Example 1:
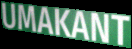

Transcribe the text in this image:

UMAKANT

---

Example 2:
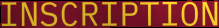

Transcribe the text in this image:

INSCRIPTION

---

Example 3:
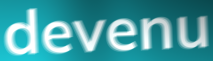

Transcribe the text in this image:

devenu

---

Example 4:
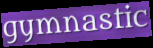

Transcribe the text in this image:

gymnastic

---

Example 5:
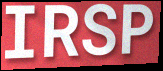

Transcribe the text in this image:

IRSP